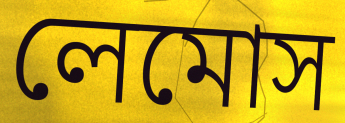
লেমোস